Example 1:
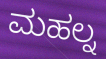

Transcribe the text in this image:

ಮಹಲ್ನ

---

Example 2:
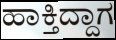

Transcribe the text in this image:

ಹಾಕ್ತಿದ್ದಾಗ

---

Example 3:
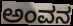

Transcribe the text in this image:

ಅಂವನ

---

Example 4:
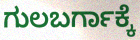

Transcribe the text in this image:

ಗುಲಬರ್ಗಾಕ್ಕೆ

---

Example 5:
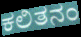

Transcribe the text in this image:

ಕಲಿತನಂ